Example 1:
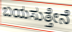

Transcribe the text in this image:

ಬಯಸುತ್ತೇನೆ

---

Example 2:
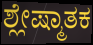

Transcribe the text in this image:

ಶ್ಲೇಷ್ಮಾತಕ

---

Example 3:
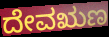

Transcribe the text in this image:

ದೇವಋಣ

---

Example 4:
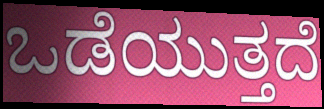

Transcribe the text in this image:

ಒಡೆಯುತ್ತದೆ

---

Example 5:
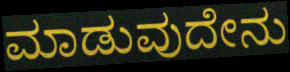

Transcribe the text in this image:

ಮಾಡುವುದೇನು